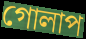
গোলাপ